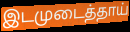
இடமுடைத்தாய்